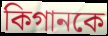
কিগানকে